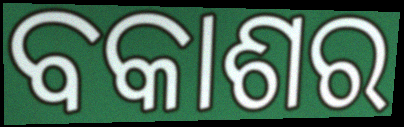
ବକାଶର